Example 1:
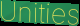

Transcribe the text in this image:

Unities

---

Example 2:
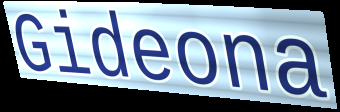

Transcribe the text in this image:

Gideona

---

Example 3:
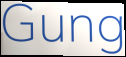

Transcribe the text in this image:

Gung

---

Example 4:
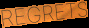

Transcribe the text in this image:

REGRETS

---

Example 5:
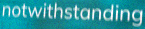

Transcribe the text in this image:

notwithstanding